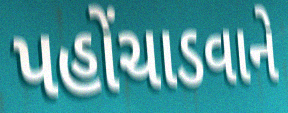
પહોંચાડવાને